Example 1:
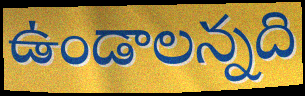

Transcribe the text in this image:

ఉండాలన్నది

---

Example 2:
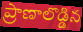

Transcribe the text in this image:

ప్రాణాలొడ్డిన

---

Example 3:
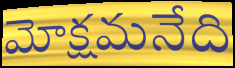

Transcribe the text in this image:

మోక్షమనేది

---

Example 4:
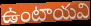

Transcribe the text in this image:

ఉంటాయవి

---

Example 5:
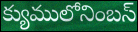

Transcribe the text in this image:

క్యుములోనింబస్